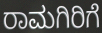
ರಾಮಗಿರಿಗೆ